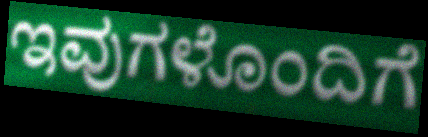
ಇವುಗಳೊಂದಿಗೆ